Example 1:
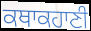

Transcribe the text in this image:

ਕਥਾਕਹਾਣੀ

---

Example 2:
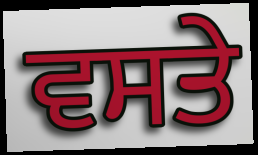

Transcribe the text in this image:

ਵਸਤੇ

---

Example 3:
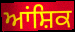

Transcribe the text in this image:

ਆਂਸ਼ਿਕ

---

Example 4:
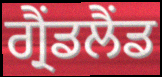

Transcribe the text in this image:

ਗ੍ਰੈਂਡਲੈਂਡ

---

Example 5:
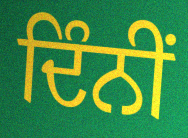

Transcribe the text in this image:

ਦਿੰਨੀਂ